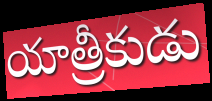
యాత్రీకుడు